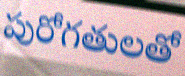
పురోగతులతో